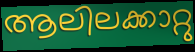
ആലിലക്കാറ്റു